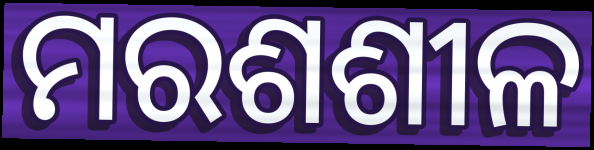
ମରଶଶୀଳ